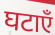
घटाएँ